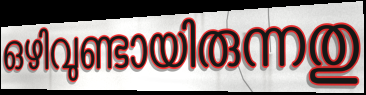
ഒഴിവുണ്ടായിരുന്നതു